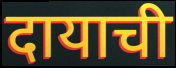
दायाची